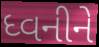
ધ્વનીને